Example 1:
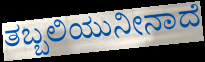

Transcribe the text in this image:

ತಬ್ಬಲಿಯುನೀನಾದೆ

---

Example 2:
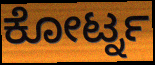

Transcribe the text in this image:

ಕೋರ್ಟ್ನ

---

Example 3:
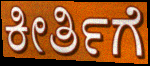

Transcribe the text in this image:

ಕೀರ್ತಿಗೆ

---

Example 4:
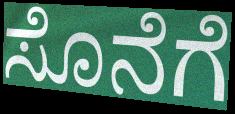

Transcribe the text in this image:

ಸೊನೆಗೆ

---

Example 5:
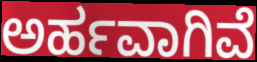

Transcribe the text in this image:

ಅರ್ಹವಾಗಿವೆ